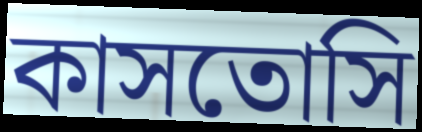
কাসতোসি